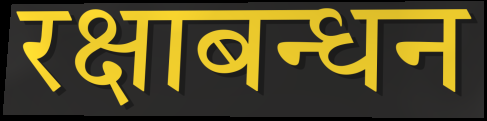
रक्षाबन्धन